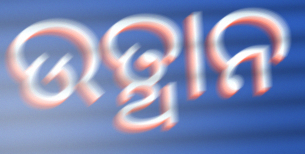
ଉତ୍ଥାନ